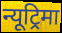
न्यूट्रिमा